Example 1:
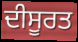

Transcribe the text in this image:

ਦੀਸੂਰਤ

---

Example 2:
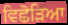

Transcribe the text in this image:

ਵਿਛੋੜਿਆ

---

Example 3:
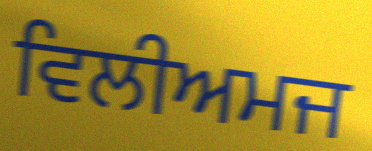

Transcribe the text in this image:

ਵਿਲੀਅਮਜ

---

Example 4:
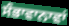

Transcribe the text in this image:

ਸੰਭਾਵਾਨਾਵਾਂ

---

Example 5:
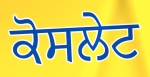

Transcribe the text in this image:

ਕੋਸਲੇਟ